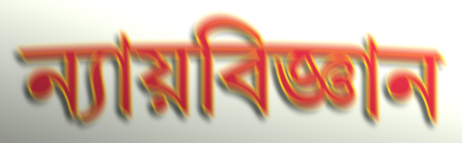
ন্যায়বিজ্ঞান